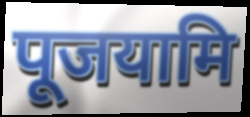
पूजयामि